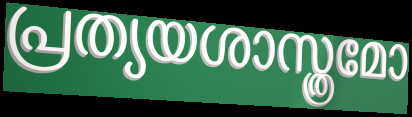
പ്രത്യയശാസ്ത്രമോ